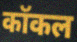
कॉकल